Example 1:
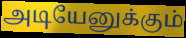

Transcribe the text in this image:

அடியேனுக்கும்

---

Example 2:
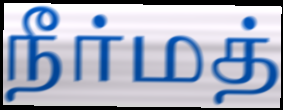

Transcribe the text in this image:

நீர்மத்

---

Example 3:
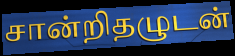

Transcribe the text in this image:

சான்றிதழுடன்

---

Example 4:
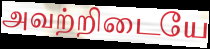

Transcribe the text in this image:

அவற்றிடையே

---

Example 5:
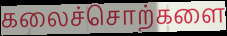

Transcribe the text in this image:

கலைச்சொற்களை